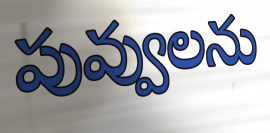
పువ్వులను